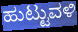
ಹುಟ್ಟುವಳಿ